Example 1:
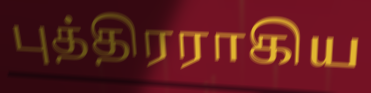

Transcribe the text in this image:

புத்திரராகிய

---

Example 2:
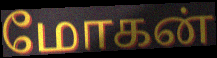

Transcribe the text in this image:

மோகன்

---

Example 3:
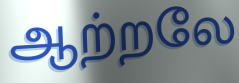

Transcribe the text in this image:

ஆற்றலே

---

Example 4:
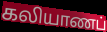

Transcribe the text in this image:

கலியாணப்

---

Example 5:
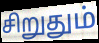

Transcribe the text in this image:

சிறுதும்